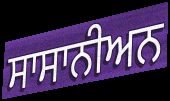
ਸਾਸਾਨੀਅਨ